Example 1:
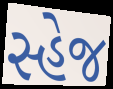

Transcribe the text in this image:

સ્હેજ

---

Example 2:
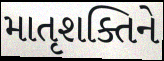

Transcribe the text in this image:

માતૃશક્તિને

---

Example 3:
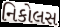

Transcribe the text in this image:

નિકોલસ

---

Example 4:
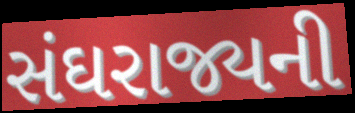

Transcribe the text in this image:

સંઘરાજ્યની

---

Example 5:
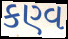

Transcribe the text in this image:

કણ્વ